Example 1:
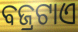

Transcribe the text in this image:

ବଜ୍ରଟାଏ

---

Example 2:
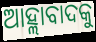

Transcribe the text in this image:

ଆହ୍ଲାବାଦକୁ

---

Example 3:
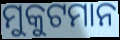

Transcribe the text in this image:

ମୁକୁଟମାନ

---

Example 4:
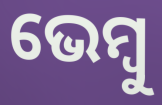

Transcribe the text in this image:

ଭେମ୍ବୁ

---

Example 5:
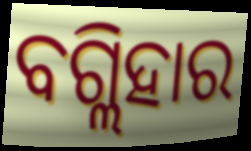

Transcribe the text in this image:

ବଗ୍ଲିହାର